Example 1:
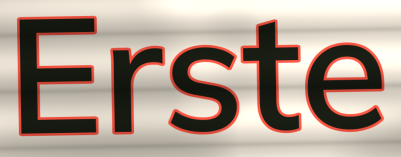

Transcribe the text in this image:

Erste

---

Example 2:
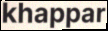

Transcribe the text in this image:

khappar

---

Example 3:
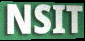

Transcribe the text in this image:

NSIT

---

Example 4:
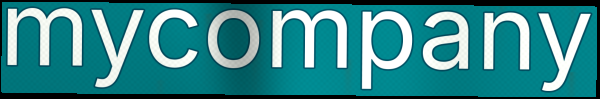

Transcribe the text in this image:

mycompany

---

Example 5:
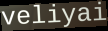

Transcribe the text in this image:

veliyai